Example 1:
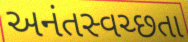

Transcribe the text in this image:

અનંતસ્વચ્છતા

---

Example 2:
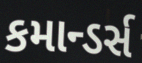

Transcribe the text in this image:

કમાન્ડર્સ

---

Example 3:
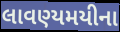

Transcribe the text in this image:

લાવણ્યમયીના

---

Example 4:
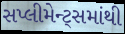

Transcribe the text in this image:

સપ્લીમેન્ટ્સમાંથી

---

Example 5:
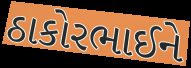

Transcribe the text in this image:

ઠાકોરભાઈને